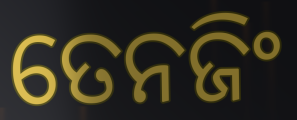
ତେନଜିଂ